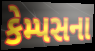
કેમ્પસના